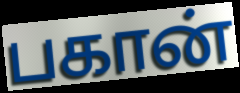
பகான்